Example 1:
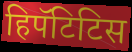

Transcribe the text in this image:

हिपॅटिटिस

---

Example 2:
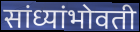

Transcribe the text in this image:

सांध्यांभोवती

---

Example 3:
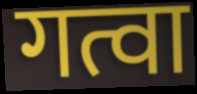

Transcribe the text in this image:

गत्वा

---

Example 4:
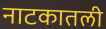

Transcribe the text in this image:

नाटकातली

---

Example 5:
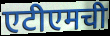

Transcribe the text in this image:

एटीएमची